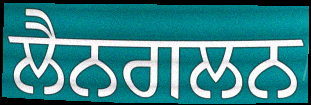
ਲੈਨਗਲਨ